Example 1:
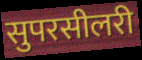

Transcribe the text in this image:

सुपरसीलरी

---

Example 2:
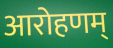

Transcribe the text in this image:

आरोहणम्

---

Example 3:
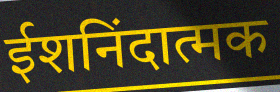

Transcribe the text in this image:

ईशनिंदात्मक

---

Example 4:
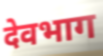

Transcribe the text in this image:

देवभाग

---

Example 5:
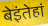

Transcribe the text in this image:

बेइंतेहां